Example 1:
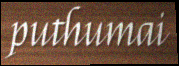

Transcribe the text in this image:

puthumai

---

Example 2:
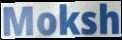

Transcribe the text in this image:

Moksh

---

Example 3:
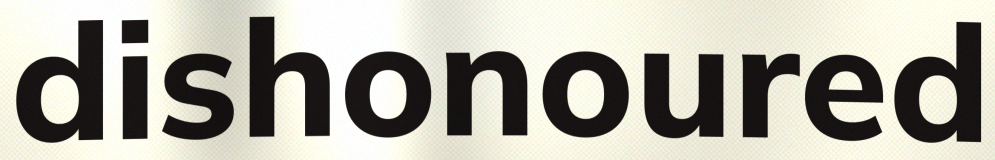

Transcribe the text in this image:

dishonoured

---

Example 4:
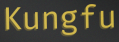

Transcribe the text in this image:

Kungfu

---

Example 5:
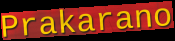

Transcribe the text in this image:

Prakarano